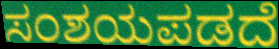
ಸಂಶಯಪಡದೆ